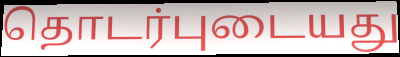
தொடர்புடையது